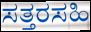
ಸತ್ತರಸಹಿ